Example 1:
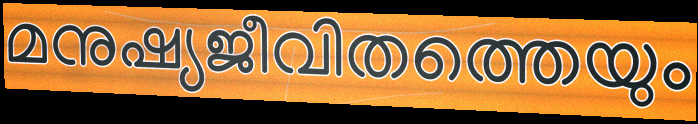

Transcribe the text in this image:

മനുഷ്യജീവിതത്തെയും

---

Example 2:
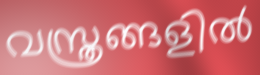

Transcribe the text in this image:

വസ്ത്രങ്ങളിൽ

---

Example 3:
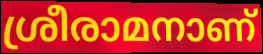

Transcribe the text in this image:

ശ്രീരാമനാണ്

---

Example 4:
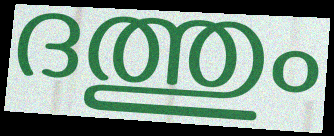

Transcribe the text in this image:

ദത്തും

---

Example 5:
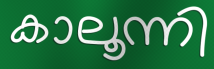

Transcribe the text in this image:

കാലൂന്നി